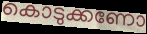
കൊടുക്കണോ